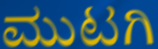
ಮುಟಗಿ